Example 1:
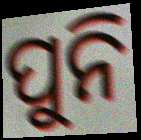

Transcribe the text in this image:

ପୁନି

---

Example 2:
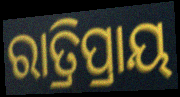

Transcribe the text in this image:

ରାତ୍ରିପ୍ରାୟ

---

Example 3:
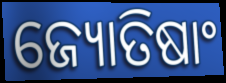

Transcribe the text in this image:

ଜ୍ୟୋତିଷାଂ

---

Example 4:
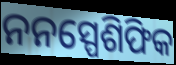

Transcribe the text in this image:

ନନସ୍ପେଶିଫିକ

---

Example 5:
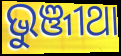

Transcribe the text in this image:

ଭୁଞ୍ଜୀଥା